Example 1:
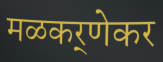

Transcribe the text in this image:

मळकर्णेकर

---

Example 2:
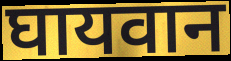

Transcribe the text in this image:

घायवान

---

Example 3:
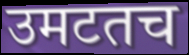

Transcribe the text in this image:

उमटतच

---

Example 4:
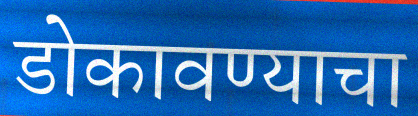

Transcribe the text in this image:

डोकावण्याचा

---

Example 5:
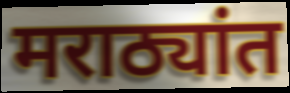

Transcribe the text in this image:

मराठ्यांत